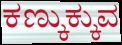
ಕಣ್ಕುಕ್ಕುವ